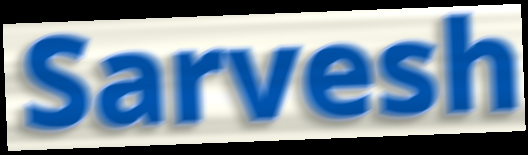
Sarvesh